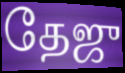
தேஜு